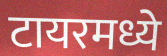
टायरमध्ये